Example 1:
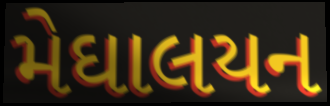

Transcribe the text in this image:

મેઘાલયન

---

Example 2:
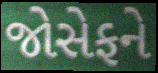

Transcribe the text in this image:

જોસેફને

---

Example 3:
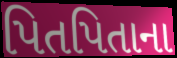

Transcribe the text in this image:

પિતપિતાના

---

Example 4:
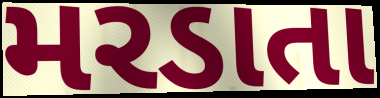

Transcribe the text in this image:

મરડાતા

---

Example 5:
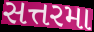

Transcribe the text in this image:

સત્તરમા